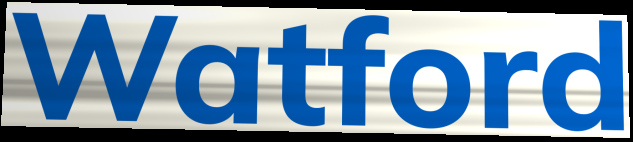
Watford